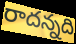
రాదన్నది